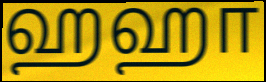
ஹஹா